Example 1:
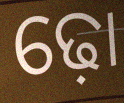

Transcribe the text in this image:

ଢ଼ୋ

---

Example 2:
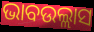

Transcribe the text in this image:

ଭାବଉଲ୍ଲାସ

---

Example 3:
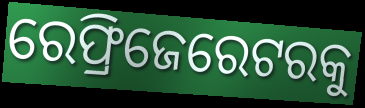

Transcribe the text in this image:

ରେଫ୍ରିଜେରେଟରକୁ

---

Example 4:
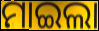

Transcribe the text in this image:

ମାଇଲା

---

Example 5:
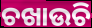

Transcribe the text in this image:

ଚଖାଉଚି